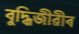
বুদ্ধিজীৱীৰ